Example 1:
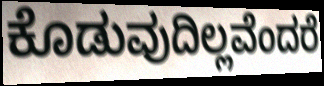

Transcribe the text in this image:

ಕೊಡುವುದಿಲ್ಲವೆಂದರೆ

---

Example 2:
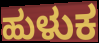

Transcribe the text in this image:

ಹುಳುಕ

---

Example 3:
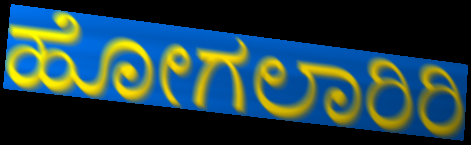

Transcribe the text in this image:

ಹೋಗಲಾರಿರಿ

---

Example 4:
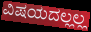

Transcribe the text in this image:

ವಿಷಯದಲ್ಲಲ್ಲ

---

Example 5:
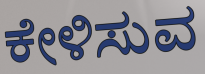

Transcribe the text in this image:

ಕೇಳಿಸುವ